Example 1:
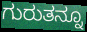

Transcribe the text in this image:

ಗುರುತನ್ನೂ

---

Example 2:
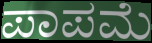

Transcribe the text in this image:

ಪಾಪಮೆ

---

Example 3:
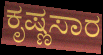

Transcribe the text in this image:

ಕೃಷ್ಣಸಾರ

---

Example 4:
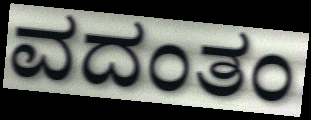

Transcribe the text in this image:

ವದಂತಂ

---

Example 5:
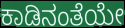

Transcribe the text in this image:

ಕಾಡಿನಂತೆಯೇ